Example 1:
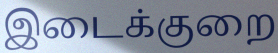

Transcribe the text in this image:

இடைக்குறை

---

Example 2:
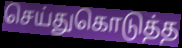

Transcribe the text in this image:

செய்துகொடுத்த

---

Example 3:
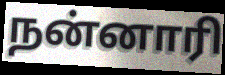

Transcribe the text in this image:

நன்னாரி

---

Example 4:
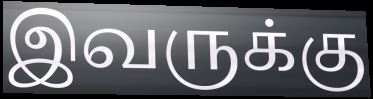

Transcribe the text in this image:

இவருக்கு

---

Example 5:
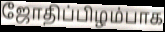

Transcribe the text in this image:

ஜோதிப்பிழம்பாக